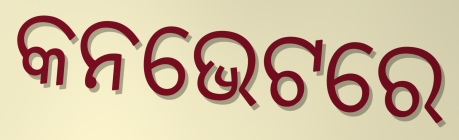
କନଭେଟରେ